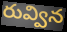
రువ్విన